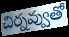
చిర్నవ్వుతో